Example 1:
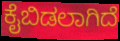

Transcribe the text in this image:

ಕೈಬಿಡಲಾಗಿದೆ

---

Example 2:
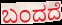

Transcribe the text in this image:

ಬಂದದೆ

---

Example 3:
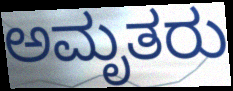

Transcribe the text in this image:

ಅಮೃತರು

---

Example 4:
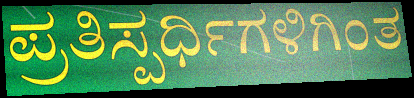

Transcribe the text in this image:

ಪ್ರತಿಸ್ಪರ್ಧಿಗಳಿಗಿಂತ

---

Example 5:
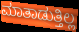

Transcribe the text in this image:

ಮಾತಾಡುತ್ತಿಲ್ಲ